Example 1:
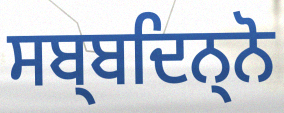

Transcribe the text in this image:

ਸਬ੍ਬਦਿਨ੍ਨੋ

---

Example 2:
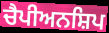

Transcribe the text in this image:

ਚੈਪੀਅਨਸ਼ਿਪ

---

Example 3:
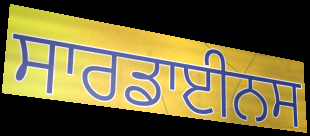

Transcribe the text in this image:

ਸਾਰਡਾਈਨਸ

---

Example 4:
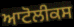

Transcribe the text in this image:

ਆਟੋਲੀਕਸ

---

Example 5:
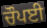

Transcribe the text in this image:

ਚੌਪਈ